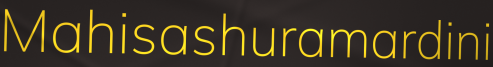
Mahisashuramardini